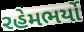
રહેમભર્યો